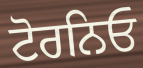
ਟੋਰਨਿਓ